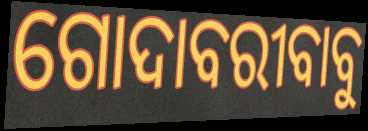
ଗୋଦାବରୀବାବୁ